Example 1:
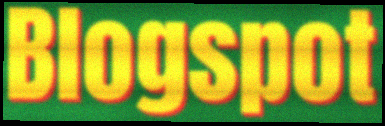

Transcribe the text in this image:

Blogspot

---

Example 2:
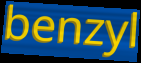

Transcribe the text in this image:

benzyl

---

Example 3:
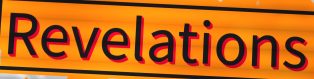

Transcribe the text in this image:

Revelations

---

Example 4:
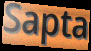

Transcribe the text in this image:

Sapta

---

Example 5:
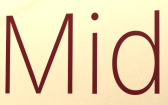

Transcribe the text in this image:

Mid